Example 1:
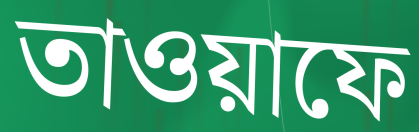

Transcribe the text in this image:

তাওয়াফে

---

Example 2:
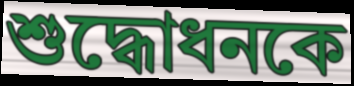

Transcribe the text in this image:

শুদ্ধোধনকে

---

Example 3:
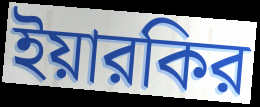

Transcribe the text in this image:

ইয়ারকির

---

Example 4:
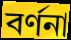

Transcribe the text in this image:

বর্ণনা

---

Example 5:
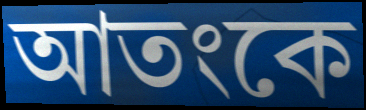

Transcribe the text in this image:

আতংকে